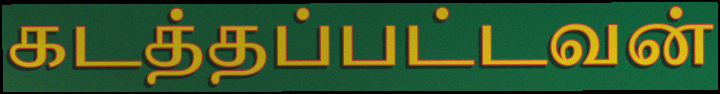
கடத்தப்பட்டவன்